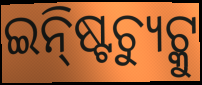
ଇନ୍ଷ୍ଟିଚ୍ୟୁଟ୍କୁ